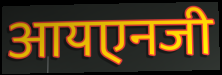
आयएनजी